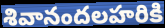
శివానందలహరికి